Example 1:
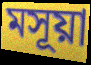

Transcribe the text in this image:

মসূয়া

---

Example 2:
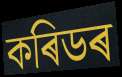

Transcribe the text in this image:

কৰিডৰ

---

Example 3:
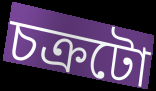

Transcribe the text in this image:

চক্ৰটো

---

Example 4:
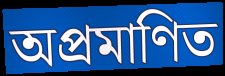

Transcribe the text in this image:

অপ্ৰমাণিত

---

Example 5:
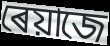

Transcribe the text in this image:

ৰেয়াজে